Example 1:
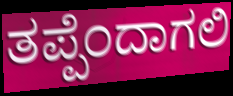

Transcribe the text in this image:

ತಪ್ಪೆಂದಾಗಲಿ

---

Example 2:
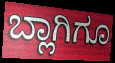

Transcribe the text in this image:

ಬ್ಲಾಗಿಗೂ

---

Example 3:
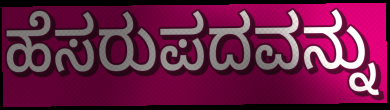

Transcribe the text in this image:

ಹೆಸರುಪದವನ್ನು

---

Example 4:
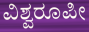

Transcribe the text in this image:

ವಿಶ್ವರೂಪೀ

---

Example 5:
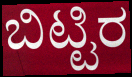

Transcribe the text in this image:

ಬಿಟ್ಟಿರ